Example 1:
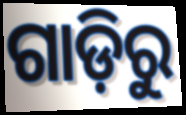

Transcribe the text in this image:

ଗାଡ଼ିରୁ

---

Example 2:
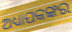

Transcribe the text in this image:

ଅଧ୍ୟାପକଙ୍କର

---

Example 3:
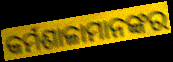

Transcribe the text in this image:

କର୍ମଶାଳାମାନଙ୍କର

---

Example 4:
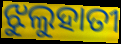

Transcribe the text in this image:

ଝୁଲୁହାତୀ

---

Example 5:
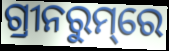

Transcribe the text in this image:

ଗ୍ରୀନରୁମ୍‌ରେ